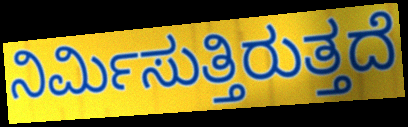
ನಿರ್ಮಿಸುತ್ತಿರುತ್ತದೆ